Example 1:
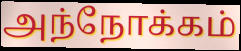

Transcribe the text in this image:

அந்நோக்கம்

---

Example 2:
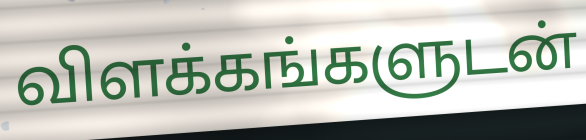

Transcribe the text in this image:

விளக்கங்களுடன்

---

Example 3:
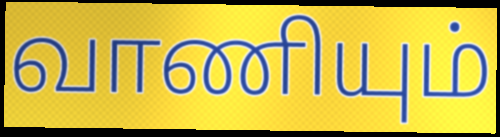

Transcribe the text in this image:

வாணியும்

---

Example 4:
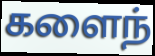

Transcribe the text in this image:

களைந்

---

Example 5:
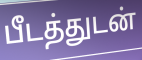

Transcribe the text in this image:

பீடத்துடன்